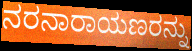
ನರನಾರಾಯಣರನ್ನು